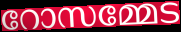
റോസമ്മേട